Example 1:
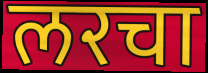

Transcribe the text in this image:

लरचा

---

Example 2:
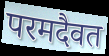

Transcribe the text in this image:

परमदैवत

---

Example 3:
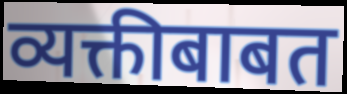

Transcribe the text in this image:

व्यक्तीबाबत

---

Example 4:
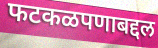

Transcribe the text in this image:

फटकळपणाबद्दल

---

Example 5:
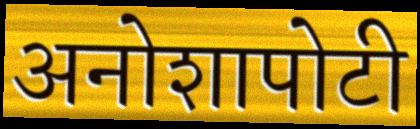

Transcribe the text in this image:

अनोशापोटी